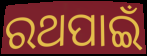
ରଥପାଇଁ